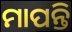
ମାପନ୍ତି